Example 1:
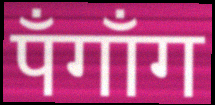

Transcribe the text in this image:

पँगाँग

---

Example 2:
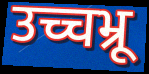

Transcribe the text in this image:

उच्चभ्रू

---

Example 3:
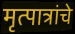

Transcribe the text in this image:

मृत्पात्रांचे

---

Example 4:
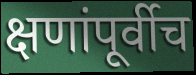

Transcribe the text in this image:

क्षणांपूर्वीच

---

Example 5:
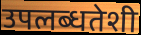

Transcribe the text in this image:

उपलब्धतेशी